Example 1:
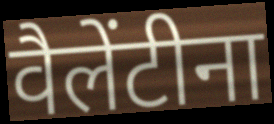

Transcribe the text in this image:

वैलेंटीना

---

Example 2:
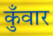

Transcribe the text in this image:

कुँवार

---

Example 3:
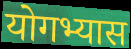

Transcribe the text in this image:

योगभ्यास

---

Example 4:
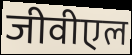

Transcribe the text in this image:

जीवीएल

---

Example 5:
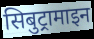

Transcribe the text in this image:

सिबुट्रामाइन